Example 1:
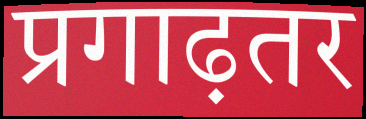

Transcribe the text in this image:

प्रगाढ़तर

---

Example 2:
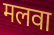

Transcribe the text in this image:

मलवा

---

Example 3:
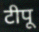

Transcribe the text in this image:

टीपू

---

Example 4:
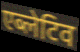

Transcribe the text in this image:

एब्लेटिव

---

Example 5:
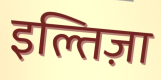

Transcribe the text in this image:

इल्तिज़ा